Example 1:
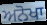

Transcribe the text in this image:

ਅਨੋਖਾ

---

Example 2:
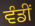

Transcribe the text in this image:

ਵੰਡੀਂ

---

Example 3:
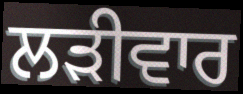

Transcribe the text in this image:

ਲੜੀਵਾਰ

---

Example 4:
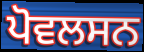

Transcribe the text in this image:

ਪੋਵਲਸਨ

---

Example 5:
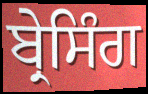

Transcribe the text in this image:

ਬ੍ਰੇਸਿੰਗ